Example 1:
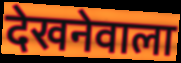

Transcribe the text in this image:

देखनेवाला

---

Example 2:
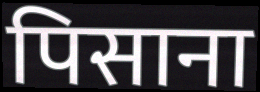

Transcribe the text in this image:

पिसाना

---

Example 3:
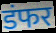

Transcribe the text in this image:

डंफर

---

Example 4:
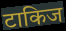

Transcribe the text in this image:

टाकिज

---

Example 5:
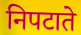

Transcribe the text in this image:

निपटाते